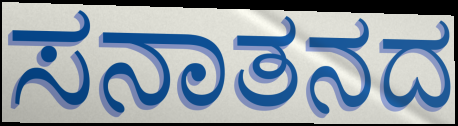
ಸನಾತನದ